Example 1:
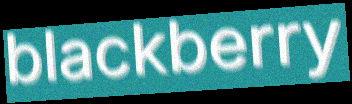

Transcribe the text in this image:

blackberry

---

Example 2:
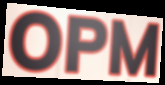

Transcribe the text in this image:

OPM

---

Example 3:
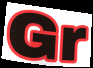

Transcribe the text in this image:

Gr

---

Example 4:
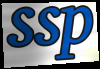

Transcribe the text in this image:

ssp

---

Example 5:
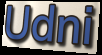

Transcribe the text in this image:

Udni